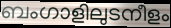
ബംഗാളിലുടനീളം